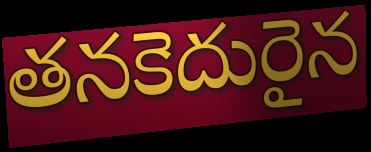
తనకెదురైన